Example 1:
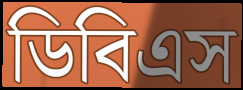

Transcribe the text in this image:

ডিবিএস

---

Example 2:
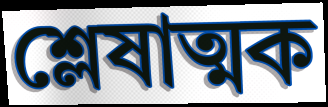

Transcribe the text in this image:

শ্লেষাত্মক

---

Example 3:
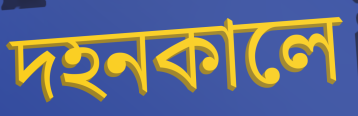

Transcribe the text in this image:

দহনকালে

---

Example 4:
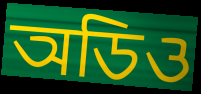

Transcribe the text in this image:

অডিও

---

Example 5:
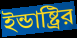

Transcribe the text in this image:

ইন্ডাষ্ট্রির